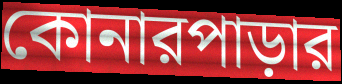
কোনারপাড়ার